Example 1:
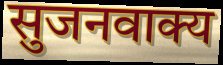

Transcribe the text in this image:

सुजनवाक्य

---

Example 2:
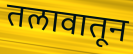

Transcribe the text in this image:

तलावातून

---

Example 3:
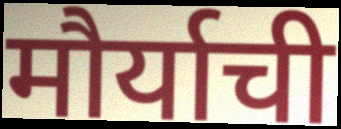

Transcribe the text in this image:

मौर्याची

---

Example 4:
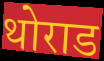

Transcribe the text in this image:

थोराड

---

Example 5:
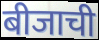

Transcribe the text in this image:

बीजाची